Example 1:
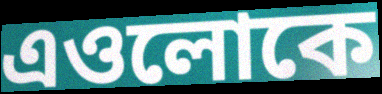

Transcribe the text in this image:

এওলোকে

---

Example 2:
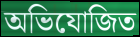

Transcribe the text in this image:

অভিযোজিত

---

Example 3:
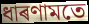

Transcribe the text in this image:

ধাৰণামতে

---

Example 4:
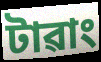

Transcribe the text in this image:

টাৱাং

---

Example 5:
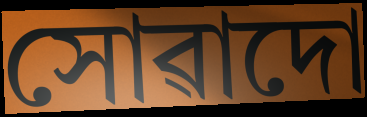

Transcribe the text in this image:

সোৱাদো